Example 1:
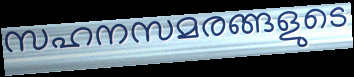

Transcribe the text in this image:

സഹനസമരങ്ങളുടെ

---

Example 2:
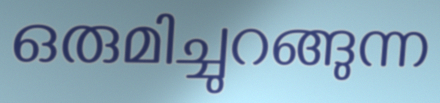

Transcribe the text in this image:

ഒരുമിച്ചുറങ്ങുന്ന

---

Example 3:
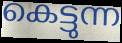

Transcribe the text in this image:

കെട്ടുന്ന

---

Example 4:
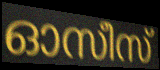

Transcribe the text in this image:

ഓസീസ്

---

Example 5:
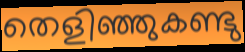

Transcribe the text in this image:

തെളിഞ്ഞുകണ്ടു